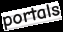
portals